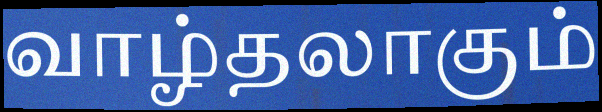
வாழ்தலாகும்